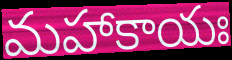
మహాకాయః